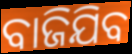
ବାଜିଯିବ